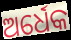
ଅର୍ଧେକ